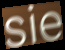
sie